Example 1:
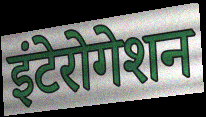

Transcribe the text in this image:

इंटेरोगेशन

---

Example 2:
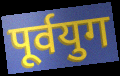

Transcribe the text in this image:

पूर्वयुग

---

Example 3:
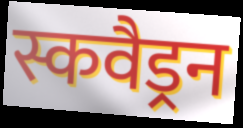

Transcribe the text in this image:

स्कवैड्रन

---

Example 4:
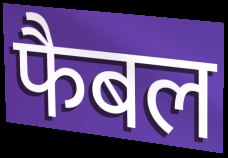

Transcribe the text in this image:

फैबल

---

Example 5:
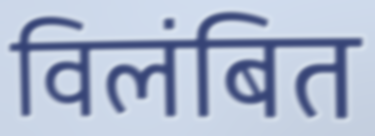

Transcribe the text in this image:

विलंबित